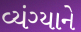
વ્યંગ્યાને